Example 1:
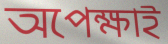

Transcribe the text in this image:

অপেক্ষাই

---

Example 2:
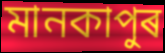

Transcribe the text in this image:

মানকাপুৰ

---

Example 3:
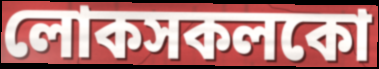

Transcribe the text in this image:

লোকসকলকো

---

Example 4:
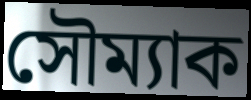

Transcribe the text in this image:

সৌম্যাক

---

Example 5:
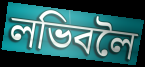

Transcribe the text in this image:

লভিবলৈ